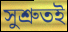
সুশ্ৰুতই